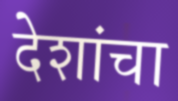
देशांचा